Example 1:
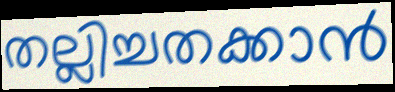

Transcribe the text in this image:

തല്ലിച്ചതക്കാൻ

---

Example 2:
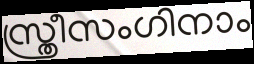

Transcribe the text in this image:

സ്ത്രീസംഗിനാം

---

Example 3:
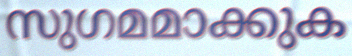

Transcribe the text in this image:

സുഗമമാക്കുക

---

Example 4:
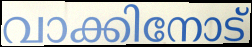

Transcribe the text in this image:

വാക്കിനോട്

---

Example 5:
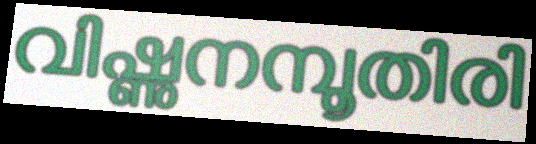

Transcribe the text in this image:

വിഷ്ണുനമ്പൂതിരി